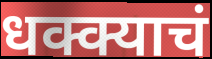
धक्क्याचं